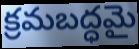
క్రమబద్ధమై